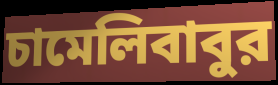
চামেলিবাবুর